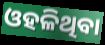
ଓହଳିଥିବା